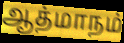
ஆத்மாநம்